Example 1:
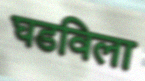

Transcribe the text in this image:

घडविला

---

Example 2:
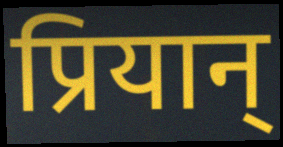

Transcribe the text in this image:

प्रियान्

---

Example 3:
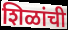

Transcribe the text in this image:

शिळांची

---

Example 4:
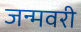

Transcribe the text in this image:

जन्मवरी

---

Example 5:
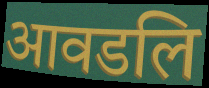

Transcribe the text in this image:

आवडलि